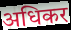
अधिकर